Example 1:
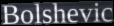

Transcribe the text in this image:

Bolshevic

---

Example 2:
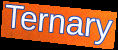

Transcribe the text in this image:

Ternary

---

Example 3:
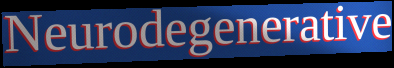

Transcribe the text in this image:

Neurodegenerative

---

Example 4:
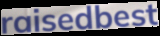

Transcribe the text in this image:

raisedbest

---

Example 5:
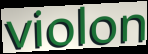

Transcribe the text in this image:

violon